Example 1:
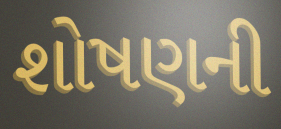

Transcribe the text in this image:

શોષણની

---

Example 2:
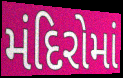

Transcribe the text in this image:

મંદિરોમાં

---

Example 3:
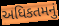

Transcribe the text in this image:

અધિકતમનું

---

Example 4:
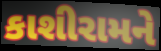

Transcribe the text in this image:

કાશીરામને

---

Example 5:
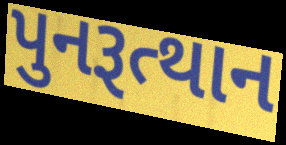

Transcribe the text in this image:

પુનરૂત્થાન